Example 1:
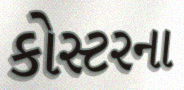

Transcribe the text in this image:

કોસ્ટરના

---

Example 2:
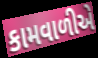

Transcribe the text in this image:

કામવાળીએ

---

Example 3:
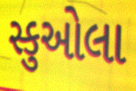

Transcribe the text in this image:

સ્કુઓલા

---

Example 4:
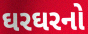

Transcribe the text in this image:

ઘરઘરનો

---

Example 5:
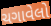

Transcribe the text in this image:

ચગાવેલો